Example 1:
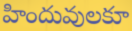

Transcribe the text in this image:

హిందువులకూ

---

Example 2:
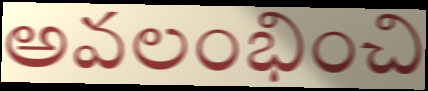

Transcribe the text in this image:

అవలంభించి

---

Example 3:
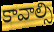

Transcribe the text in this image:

కావాల్సి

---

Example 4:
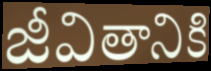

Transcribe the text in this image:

జీవితానికి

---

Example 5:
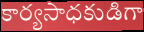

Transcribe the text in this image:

కార్యసాధకుడిగా